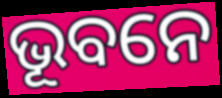
ଭୂବନେ